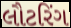
લૌટરિંગ